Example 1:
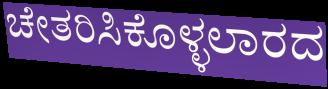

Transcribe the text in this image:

ಚೇತರಿಸಿಕೊಳ್ಳಲಾರದ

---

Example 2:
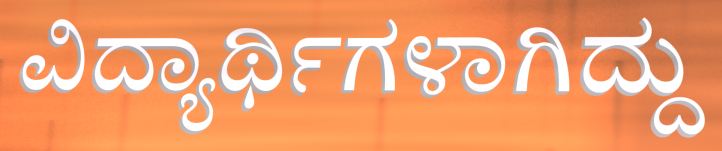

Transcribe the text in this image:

ವಿದ್ಯಾರ್ಥಿಗಳಾಗಿದ್ದು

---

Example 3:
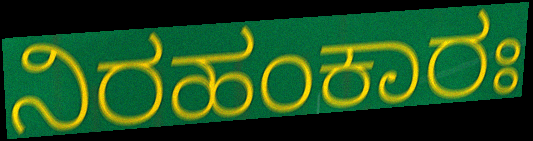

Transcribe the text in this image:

ನಿರಹಂಕಾರಃ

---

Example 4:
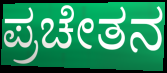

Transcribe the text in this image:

ಪ್ರಚೇತನ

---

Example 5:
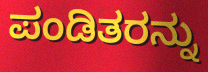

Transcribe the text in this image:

ಪಂಡಿತರನ್ನು